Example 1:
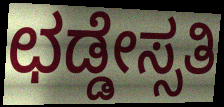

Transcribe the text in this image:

ಛಡ್ಡೇಸ್ಸತಿ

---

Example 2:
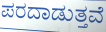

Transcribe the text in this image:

ಪರದಾಡುತ್ತವೆ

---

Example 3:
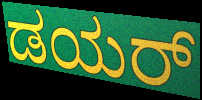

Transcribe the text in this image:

ಡಯರ್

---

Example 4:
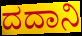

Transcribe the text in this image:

ದದಾನಿ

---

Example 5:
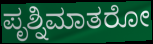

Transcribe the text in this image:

ಪೃಶ್ನಿಮಾತರೋ